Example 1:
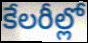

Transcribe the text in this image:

కేలరీల్లో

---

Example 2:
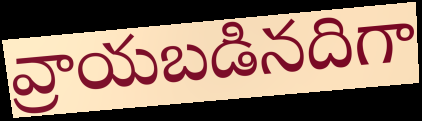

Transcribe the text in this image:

వ్రాయబడినదిగా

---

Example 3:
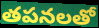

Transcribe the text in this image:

తపనలతో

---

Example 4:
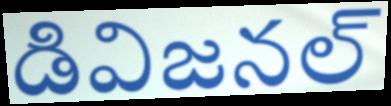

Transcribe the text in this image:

డివిజనల్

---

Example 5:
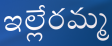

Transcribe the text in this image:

ఇల్లేరమ్మ